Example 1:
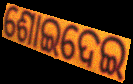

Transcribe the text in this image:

ଶୋଇଦେଇ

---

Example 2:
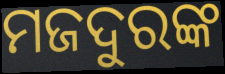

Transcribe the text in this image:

ମଜଦୁରଙ୍କ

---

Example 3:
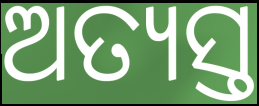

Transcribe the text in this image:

ଅତ୍ୟସ୍ତ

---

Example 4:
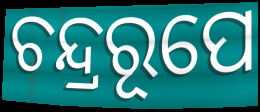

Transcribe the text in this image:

ଚନ୍ଦ୍ରରୂପେ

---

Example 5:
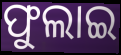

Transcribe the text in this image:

ଫୁଲାଇ